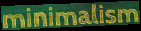
minimalism